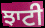
ਝਾਟੀ